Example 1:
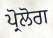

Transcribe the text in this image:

ਪ੍ਰੋਲੋਗ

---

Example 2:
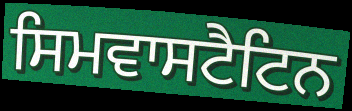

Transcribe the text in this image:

ਸਿਮਵਾਸਟੈਟਿਨ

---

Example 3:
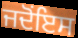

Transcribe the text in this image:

ਜਦੋਂਇਸ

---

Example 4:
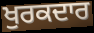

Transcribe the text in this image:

ਖੁਰਕਦਾਰ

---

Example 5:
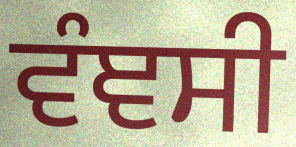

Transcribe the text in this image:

ਵੰਞਸੀ